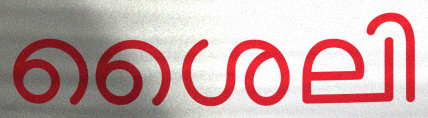
ശൈലി